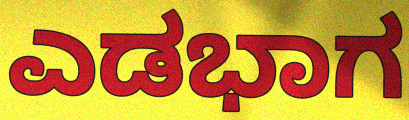
ಎಡಭಾಗ